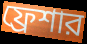
ফ্রেশার